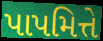
પાપમિત્તે